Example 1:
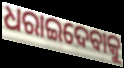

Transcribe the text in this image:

ଧରାଇଦେବାକୁ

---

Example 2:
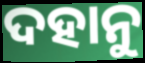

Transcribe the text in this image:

ଦହାନୁ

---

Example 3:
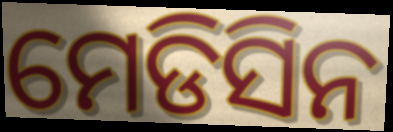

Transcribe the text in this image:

ମେଡିସିନ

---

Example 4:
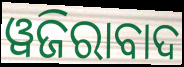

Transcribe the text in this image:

ୱଜିରାବାଦ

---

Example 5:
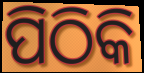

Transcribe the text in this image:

ପିଠିକି